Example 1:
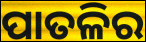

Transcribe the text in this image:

ପାତଳିର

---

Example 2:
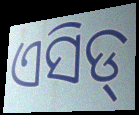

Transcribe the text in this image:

ଏସିଡ୍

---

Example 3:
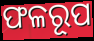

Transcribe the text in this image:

ଫଳରୂପ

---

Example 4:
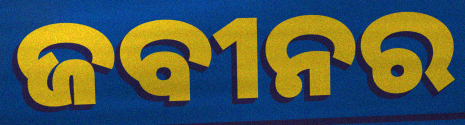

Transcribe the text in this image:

ଜବୀନର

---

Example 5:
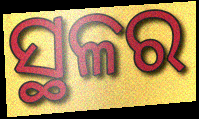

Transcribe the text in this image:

ସ୍ଥଳର